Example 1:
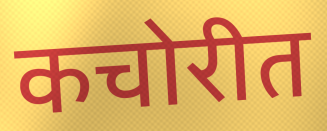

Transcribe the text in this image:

कचोरीत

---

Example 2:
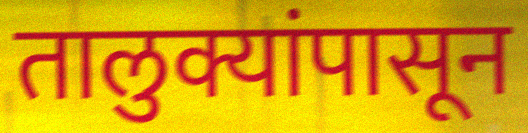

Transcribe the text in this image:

तालुक्यांपासून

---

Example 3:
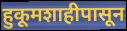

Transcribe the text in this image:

हुकूमशाहीपासून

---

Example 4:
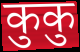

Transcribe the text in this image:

कुकु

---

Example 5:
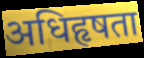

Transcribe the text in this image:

अधिहृषता